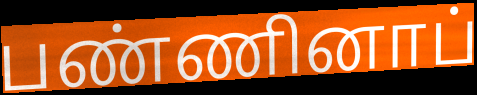
பண்ணினாப்